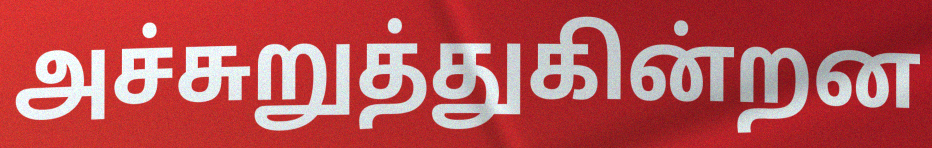
அச்சுறுத்துகின்றன